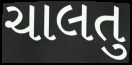
ચાલતુ